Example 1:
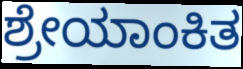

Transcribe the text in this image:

ಶ್ರೇಯಾಂಕಿತ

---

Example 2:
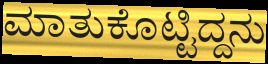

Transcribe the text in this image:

ಮಾತುಕೊಟ್ಟಿದ್ದನು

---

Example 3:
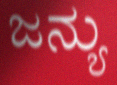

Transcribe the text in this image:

ಜನ್ಯು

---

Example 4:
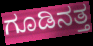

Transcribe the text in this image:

ಗೂಡಿನತ್ತ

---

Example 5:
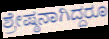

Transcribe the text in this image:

ಶ್ರೇಷ್ಠನಾಗಿದ್ದರೂ